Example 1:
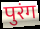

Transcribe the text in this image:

पुरंग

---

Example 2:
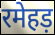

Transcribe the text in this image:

रमेहड़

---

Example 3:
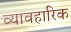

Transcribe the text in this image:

व्यावहारिक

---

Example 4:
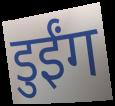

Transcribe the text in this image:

डुईंग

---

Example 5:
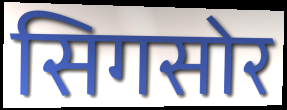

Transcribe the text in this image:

सिगसोर